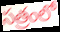
సత్రంలో